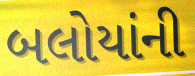
બલોયાંની